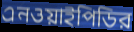
এনওয়াইপিডির